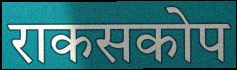
राकसकोप